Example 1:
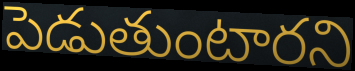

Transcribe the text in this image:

పెడుతుంటారని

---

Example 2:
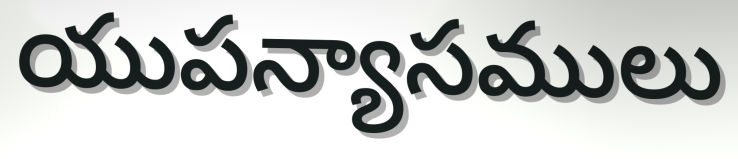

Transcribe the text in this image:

యుపన్యాసములు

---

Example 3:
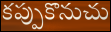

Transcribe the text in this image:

కప్పుకొనుచు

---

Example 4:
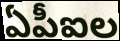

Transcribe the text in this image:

ఏపీఐల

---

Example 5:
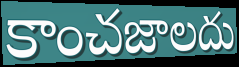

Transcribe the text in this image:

కాంచజాలదు